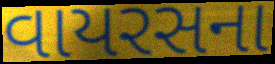
વાયરસના